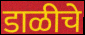
डाळीचे